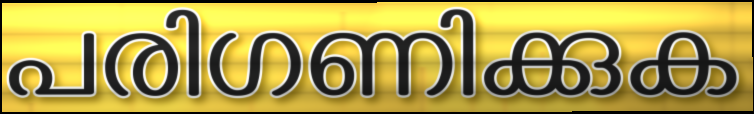
പരിഗണിക്കുക